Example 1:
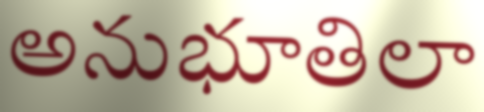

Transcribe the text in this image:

అనుభూతిలా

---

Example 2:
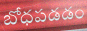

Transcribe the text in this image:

బోధపడడం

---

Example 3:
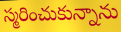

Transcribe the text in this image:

స్మరించుకున్నాను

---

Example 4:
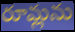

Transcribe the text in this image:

రూమ్లను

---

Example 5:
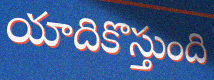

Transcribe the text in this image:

యాదికొస్తుంది